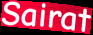
Sairat